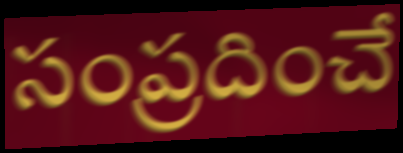
సంప్రదించే